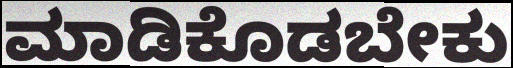
ಮಾಡಿಕೊಡಬೇಕು